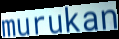
murukan